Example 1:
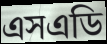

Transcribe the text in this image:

এসএডি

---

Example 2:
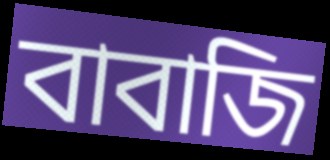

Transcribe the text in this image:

বাবাজি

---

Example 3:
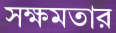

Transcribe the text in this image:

সক্ষমতার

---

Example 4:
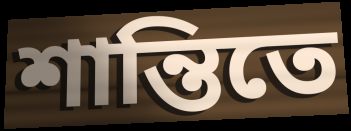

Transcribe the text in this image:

শান্তিতে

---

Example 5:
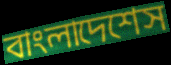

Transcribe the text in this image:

বাংলাদেশেস